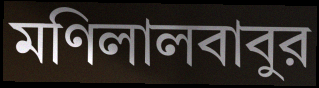
মণিলালবাবুর